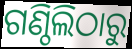
ଗଣ୍ଠିଲିଠାରୁ